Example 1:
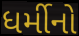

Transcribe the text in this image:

ધર્મીનો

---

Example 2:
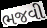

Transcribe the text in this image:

ભજવી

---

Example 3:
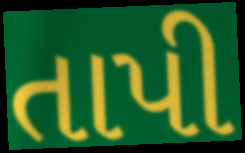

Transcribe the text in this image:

તાપી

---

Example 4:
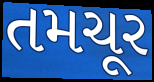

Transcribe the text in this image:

તમચૂર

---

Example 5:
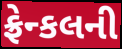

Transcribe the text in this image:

ફ્રેન્કલની